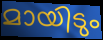
മായിടും